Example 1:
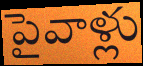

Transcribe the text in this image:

పైవాళ్లు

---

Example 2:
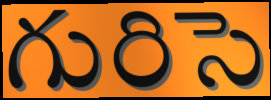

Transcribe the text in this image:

గురిసె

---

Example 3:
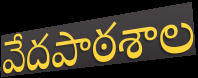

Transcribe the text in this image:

వేదపాఠశాల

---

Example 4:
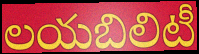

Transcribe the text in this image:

లయబిలిటీ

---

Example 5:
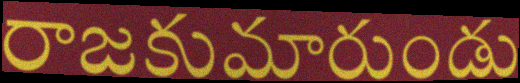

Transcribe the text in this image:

రాజకుమారుండు